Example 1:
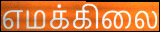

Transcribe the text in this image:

எமக்கிலை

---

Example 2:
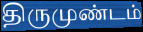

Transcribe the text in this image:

திருமுண்டம்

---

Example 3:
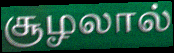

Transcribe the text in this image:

சூழலால்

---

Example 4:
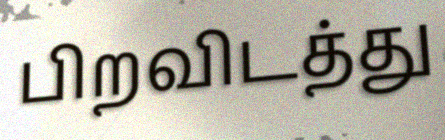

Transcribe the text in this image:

பிறவிடத்து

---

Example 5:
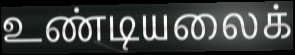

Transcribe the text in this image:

உண்டியலைக்